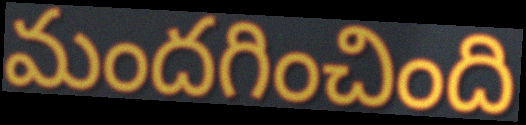
మందగించింది